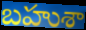
బహుశా